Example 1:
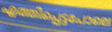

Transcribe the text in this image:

എത്തിപ്പെട്ടപോലെ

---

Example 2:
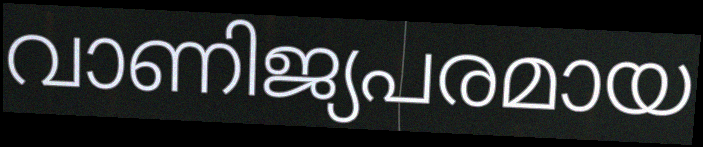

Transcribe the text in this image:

വാണിജ്യപരമായ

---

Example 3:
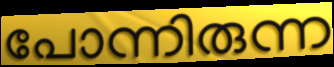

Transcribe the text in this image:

പോന്നിരുന്ന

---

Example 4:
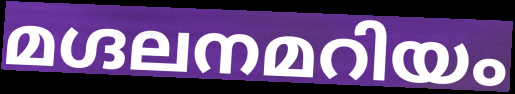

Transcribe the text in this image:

മഗ്ദലനമറിയം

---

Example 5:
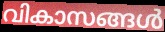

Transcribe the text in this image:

വികാസങ്ങൾ